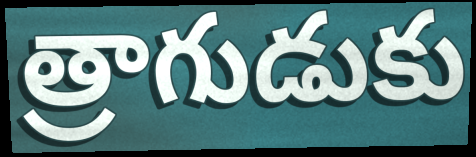
త్రాగుడుకు